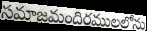
సమాజమందిరములలోను